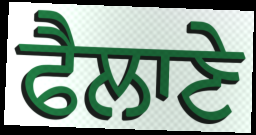
ਫੈਲਾਣੇ